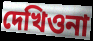
দেখিওনা